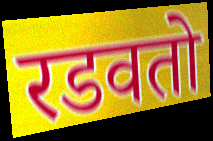
रडवतो